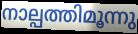
നാല്പത്തിമൂന്നു